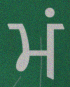
ਮਂ